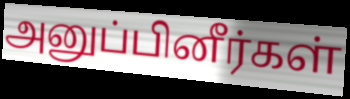
அனுப்பினீர்கள்